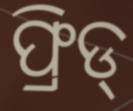
ଫ୍ରିଡ୍